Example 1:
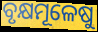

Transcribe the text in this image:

ବୃକ୍ଷମୂଳେଷୁ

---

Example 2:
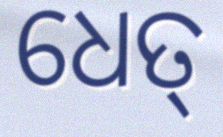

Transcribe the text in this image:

ଧେତ୍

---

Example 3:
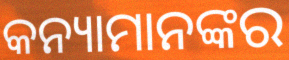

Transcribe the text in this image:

କନ୍ୟାମାନଙ୍କର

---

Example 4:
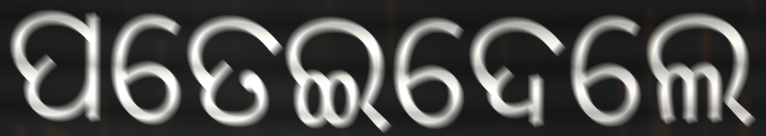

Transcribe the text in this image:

ପତେଇଦେଲେ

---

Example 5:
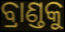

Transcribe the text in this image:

ବ୍ରାଣ୍ଡକୁ